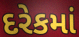
દરેકમાં